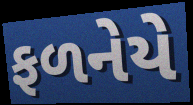
ફળનેયે